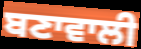
ਬਣਾਵਾਲੀ